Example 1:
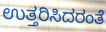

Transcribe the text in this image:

ಉತ್ತರಿಸಿದರಂತೆ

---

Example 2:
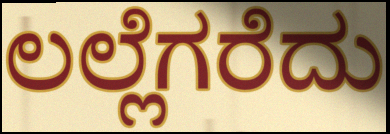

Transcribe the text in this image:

ಲಲ್ಲೆಗರೆದು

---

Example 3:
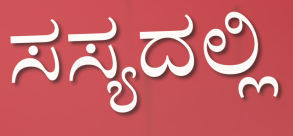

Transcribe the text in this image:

ಸಸ್ಯದಲ್ಲಿ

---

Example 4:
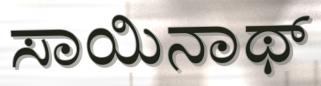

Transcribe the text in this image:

ಸಾಯಿನಾಥ್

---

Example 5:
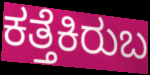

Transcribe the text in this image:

ಕತ್ತೆಕಿರುಬ